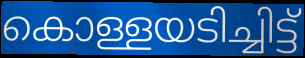
കൊള്ളയടിച്ചിട്ട്